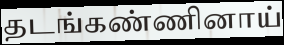
தடங்கண்ணினாய்